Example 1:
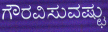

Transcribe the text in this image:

ಗೌರವಿಸುವಷ್ಟು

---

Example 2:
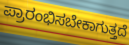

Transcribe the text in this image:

ಪ್ರಾರಂಭಿಸಬೇಕಾಗುತ್ತದೆ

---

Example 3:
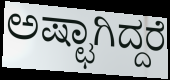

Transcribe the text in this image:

ಅಷ್ಟಾಗಿದ್ದರೆ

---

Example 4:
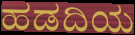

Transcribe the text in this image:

ಹಡದಿಯ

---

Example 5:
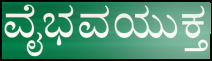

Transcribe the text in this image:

ವೈಭವಯುಕ್ತ